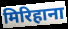
मिरिहाना